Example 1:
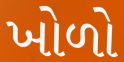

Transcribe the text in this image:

ખોળો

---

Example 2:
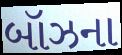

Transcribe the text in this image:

બૉઝના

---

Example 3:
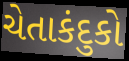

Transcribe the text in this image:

ચેતાકંદુકો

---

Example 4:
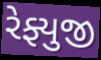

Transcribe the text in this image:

રેફ્યુજી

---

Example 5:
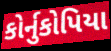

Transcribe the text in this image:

કોર્નુકોપિયા